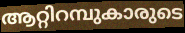
ആറ്റിറമ്പുകാരുടെ